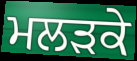
ਮਲੜਕੇ